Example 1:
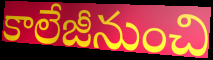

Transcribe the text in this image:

కాలేజీనుంచి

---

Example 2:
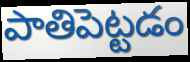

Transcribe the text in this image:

పాతిపెట్టడం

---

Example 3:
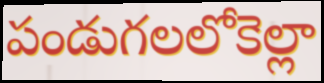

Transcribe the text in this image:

పండుగలలోకెల్లా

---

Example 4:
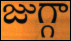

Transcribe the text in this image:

జుగ్గా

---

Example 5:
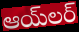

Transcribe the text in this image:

ఆయ్‌లర్